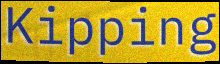
Kipping